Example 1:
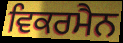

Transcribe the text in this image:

ਵਿਕਰਮੈਨ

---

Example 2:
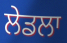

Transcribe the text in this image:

ਲੇਡਲਾ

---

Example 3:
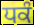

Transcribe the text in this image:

ਧਕੰ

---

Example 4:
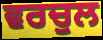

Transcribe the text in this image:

ਵਰਚੁਲ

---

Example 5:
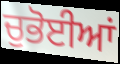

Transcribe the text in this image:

ਚੁਭੋਈਆਂ